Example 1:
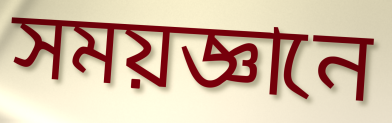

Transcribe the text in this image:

সময়জ্ঞানে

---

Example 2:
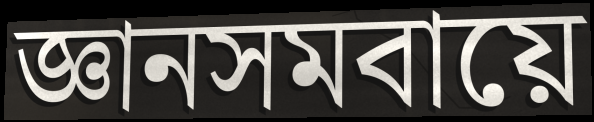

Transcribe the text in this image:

জ্ঞানসমবায়ে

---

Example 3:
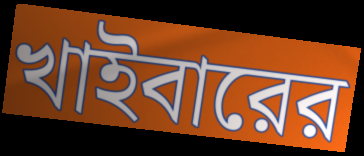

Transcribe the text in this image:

খাইবারের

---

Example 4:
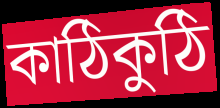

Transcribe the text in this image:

কাঠিকুঠি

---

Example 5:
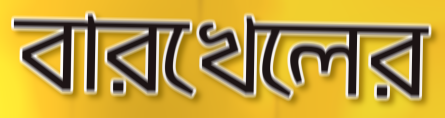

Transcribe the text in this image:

বারখেলের